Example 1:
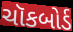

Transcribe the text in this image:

ચૉકબોર્ડ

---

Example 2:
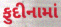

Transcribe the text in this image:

ફુદીનામાં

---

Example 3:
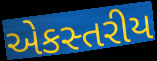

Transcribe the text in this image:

એકસ્તરીય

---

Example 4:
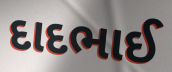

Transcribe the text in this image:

દાદભાઈ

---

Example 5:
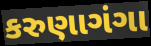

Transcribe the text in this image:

કરુણાગંગા